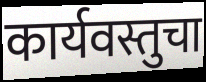
कार्यवस्तुचा